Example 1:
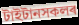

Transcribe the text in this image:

টাইটানসকলৰ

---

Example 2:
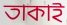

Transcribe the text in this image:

তাকাই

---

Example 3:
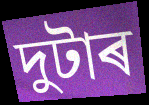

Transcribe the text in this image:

দুটাৰ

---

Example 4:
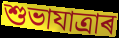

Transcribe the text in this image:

শুভাযাত্ৰাৰ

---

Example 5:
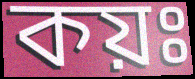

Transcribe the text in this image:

কয়ঃ